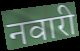
नवारी